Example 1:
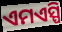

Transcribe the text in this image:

ଏମଏସ୍ପି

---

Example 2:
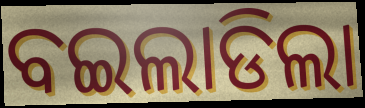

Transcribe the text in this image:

ବଇଲାଡିଲା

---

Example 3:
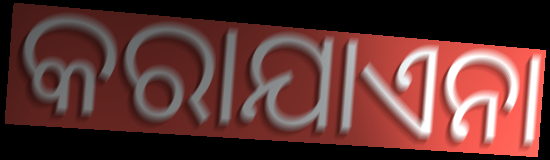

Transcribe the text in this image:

କରାଯାଏନା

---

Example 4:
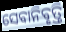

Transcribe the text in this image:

ସେବାନିବୃତ୍ତି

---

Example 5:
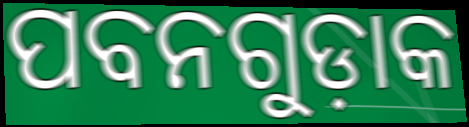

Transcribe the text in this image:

ପବନଗୁଡ଼ାକ